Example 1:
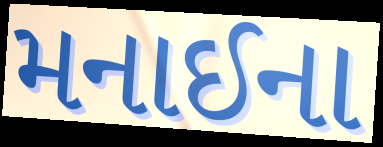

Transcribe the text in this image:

મનાઈના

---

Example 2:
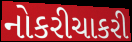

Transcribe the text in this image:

નોકરીચાકરી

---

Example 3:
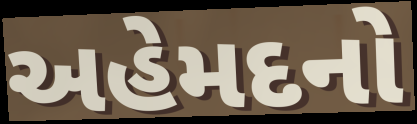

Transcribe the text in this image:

અહેમદનો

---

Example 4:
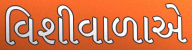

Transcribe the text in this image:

વિશીવાળાએ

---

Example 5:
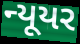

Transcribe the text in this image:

ન્યૂયર